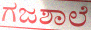
ಗಜಶಾಲೆ